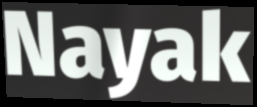
Nayak